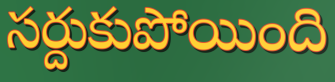
సర్దుకుపోయింది